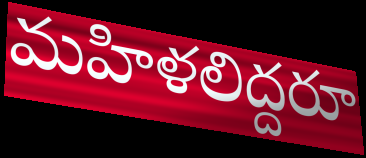
మహిళలిద్దరూ